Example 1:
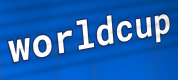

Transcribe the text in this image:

worldcup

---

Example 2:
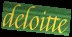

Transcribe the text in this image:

deloitte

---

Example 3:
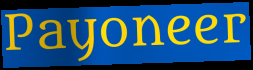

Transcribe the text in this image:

Payoneer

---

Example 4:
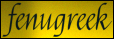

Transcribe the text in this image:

fenugreek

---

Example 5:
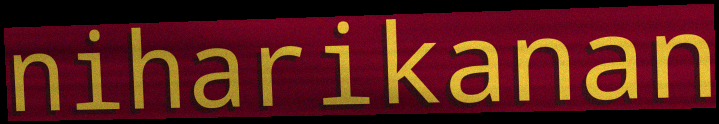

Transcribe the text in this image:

niharikanan